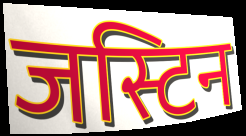
जस्‍टिन